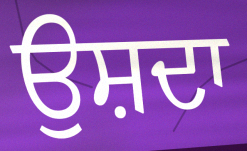
ਉਸ਼ਦਾ